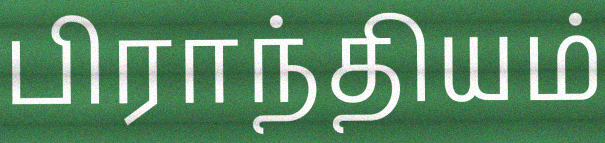
பிராந்தியம்